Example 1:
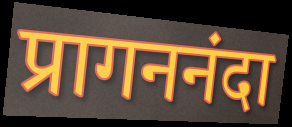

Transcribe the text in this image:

प्रागननंदा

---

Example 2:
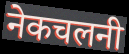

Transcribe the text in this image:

नेकचलनी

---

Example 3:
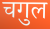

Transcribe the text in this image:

चगुल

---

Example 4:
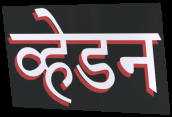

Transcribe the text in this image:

व्हेडन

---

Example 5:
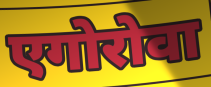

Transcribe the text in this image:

एगोरोवा